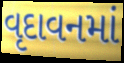
વૃદાવનમાં